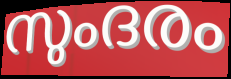
സുംദരം